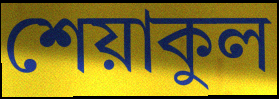
শেয়াকুল